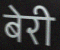
बेरी